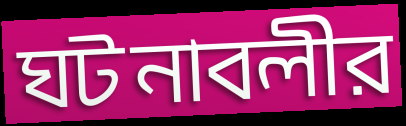
ঘটনাবলীর